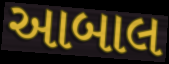
આબાલ